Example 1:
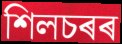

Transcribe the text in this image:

শিলচৰৰ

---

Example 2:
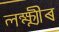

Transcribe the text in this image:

লক্ষ্মীৰ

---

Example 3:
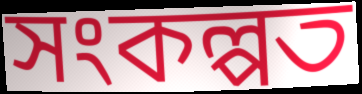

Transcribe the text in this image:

সংকল্পত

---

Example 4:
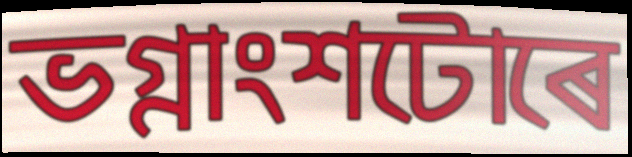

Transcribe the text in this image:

ভগ্নাংশটোৰে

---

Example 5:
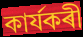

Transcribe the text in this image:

কাৰ্যকৰী